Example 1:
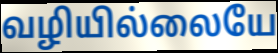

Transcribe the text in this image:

வழியில்லையே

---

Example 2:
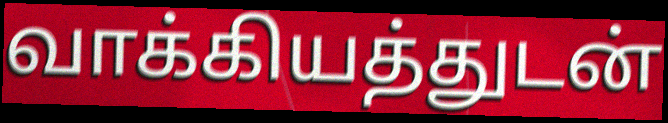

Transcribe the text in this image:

வாக்கியத்துடன்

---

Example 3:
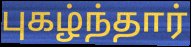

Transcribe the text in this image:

புகழ்ந்தார்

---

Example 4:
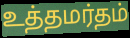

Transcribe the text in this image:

உத்தமர்தம்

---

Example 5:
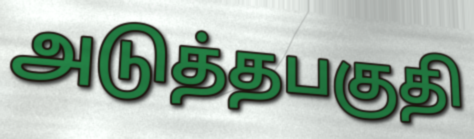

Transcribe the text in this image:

அடுத்தபகுதி